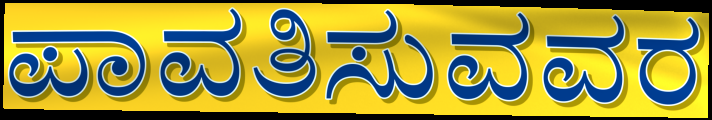
ಪಾವತಿಸುವವರ